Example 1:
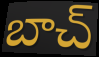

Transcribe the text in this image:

బాచ్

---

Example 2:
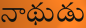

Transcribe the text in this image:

నాథుడు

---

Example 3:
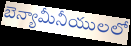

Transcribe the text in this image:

బెన్యామీనీయులలో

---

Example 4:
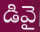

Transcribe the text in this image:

డివై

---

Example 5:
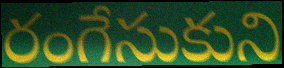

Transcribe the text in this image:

రంగేసుకుని